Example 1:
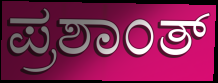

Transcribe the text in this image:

ಪ್ರಶಾಂತ್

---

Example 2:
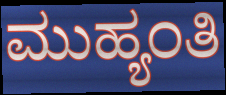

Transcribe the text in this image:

ಮುಹ್ಯಂತಿ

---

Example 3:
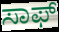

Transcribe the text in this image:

ಸಾಫ್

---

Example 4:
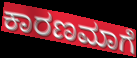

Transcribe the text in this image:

ಕಾರಣಮಾಗೆ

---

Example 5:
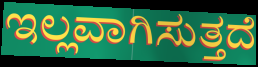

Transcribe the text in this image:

ಇಲ್ಲವಾಗಿಸುತ್ತದೆ